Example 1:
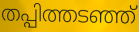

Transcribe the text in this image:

തപ്പിത്തടഞ്ഞ്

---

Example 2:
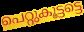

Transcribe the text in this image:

പെറ്റുകൂട്ടട്ടെ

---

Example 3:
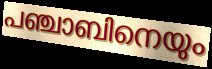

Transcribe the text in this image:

പഞ്ചാബിനെയും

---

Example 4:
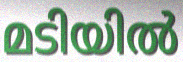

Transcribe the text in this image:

മടിയിൽ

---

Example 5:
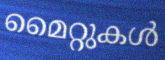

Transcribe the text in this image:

മൈറ്റുകൾ